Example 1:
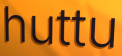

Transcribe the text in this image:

huttu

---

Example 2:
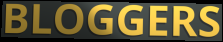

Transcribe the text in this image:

BLOGGERS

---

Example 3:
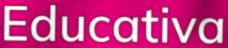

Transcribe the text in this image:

Educativa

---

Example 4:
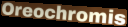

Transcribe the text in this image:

Oreochromis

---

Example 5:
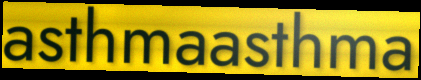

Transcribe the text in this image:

asthmaasthma